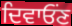
ਦਿਵਾਓੰਣ